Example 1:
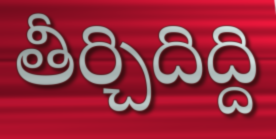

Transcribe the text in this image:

తీర్చిదిద్ది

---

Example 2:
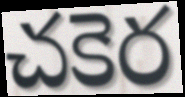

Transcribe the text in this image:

చకెర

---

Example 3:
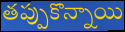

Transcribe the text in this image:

తప్పుకొన్నాయి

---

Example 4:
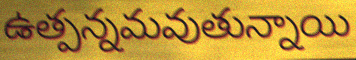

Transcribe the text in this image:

ఉత్పన్నమవుతున్నాయి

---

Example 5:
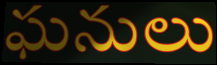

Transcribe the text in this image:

ఘనులు